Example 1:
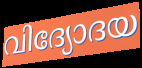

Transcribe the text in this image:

വിദ്യോദയ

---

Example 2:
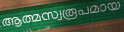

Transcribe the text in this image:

ആത്മസ്വരൂപമായ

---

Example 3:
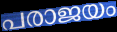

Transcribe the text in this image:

പരാജയം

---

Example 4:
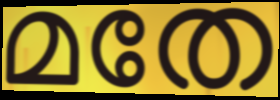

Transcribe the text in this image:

മതേ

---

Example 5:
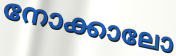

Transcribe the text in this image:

നോക്കാലോ